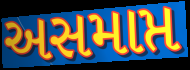
અસમાપ્ત